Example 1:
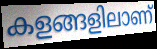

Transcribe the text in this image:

കളങ്ങളിലാണ്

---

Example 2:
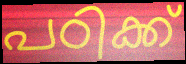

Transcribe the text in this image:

പഠിക്ക്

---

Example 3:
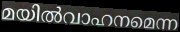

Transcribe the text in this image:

മയിൽവാഹനമെന്ന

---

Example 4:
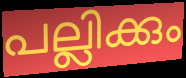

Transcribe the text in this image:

പല്ലിക്കും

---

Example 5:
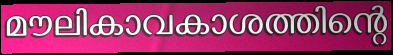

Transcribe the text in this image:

മൗലികാവകാശത്തിന്റെ